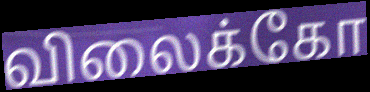
விலைக்கோ